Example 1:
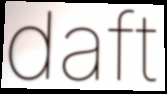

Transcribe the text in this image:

daft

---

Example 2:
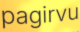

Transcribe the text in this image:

pagirvu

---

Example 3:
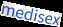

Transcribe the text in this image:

medisex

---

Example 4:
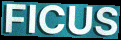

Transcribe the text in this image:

FICUS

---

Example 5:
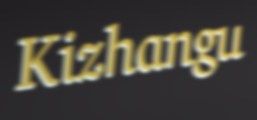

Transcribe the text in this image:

Kizhangu